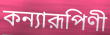
কন্যারূপিণী